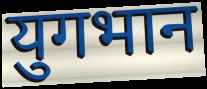
युगभान